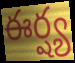
ఈర్ష్య